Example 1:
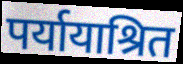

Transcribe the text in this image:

पर्यायाश्रित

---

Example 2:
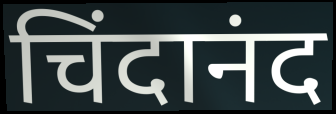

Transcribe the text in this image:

चिंदानंद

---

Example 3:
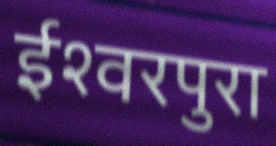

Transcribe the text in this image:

ईश्वरपुरा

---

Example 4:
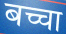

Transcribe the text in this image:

बच्‍चा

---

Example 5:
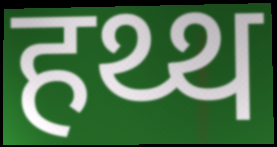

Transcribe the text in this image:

हथ्थ